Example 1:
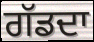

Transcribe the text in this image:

ਗੱਡਦਾ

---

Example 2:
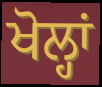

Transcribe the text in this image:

ਖੋਲ੍ਹਾਂ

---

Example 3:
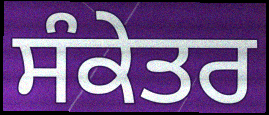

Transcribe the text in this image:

ਸੰਕੇਤਰ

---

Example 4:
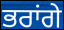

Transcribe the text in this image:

ਭਰਾਂਗੇ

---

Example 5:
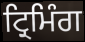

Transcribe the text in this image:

ਟ੍ਰਿਮਿੰਗ